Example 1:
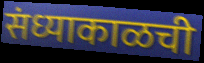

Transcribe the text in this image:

संध्याकाळची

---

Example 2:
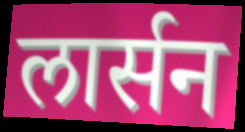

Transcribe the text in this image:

लार्सन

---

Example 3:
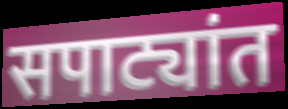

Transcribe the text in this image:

सपाट्यांत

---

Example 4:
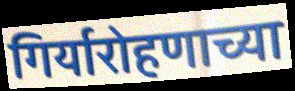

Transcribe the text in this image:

गिर्यारोहणाच्या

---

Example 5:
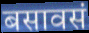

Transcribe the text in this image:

बसावसं